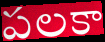
పలకా